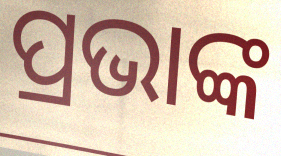
ପ୍ରଭାଙ୍କ